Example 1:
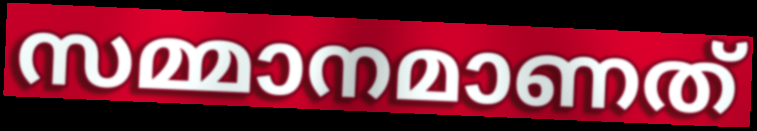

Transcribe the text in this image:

സമ്മാനമാണത്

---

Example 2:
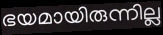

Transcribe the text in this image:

ഭയമായിരുന്നില്ല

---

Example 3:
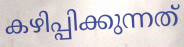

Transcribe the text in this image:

കഴിപ്പിക്കുന്നത്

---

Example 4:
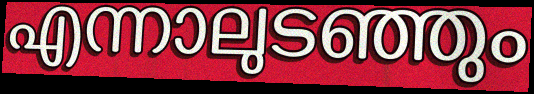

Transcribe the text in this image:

എന്നാലുടഞ്ഞും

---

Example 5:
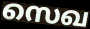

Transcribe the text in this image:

സെഖ